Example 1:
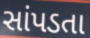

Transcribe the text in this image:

સાંપડતા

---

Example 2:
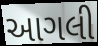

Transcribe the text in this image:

આગલી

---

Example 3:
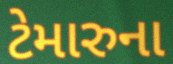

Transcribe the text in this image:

ટેમારુના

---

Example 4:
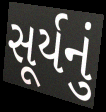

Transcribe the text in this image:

સૂર્યનું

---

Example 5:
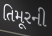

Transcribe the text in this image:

તિમૂરની